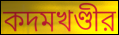
কদমখণ্ডীর